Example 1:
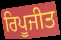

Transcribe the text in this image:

ਰਿਪੂਜੀਤ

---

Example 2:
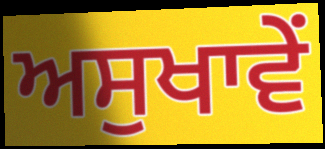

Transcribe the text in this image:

ਅਸੁਖਾਵੇਂ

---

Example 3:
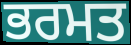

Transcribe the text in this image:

ਭਰਮਤ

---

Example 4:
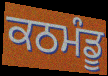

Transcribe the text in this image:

ਕਠਮੰਡੂ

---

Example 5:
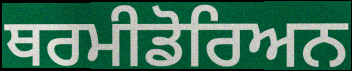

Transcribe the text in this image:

ਥਰਮੀਡੋਰਿਅਨ